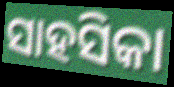
ସାହସିକା